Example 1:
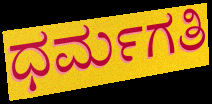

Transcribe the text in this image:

ಧರ್ಮಗತಿ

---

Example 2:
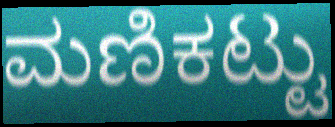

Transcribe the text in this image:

ಮಣಿಕಟ್ಟು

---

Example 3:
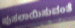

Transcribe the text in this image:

ಪುಸಲಾಯಿಸುವಂತೆ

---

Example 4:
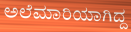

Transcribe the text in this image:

ಅಲೆಮಾರಿಯಾಗಿದ್ದ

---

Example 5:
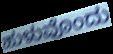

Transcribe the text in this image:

ಹುಳುವೊಂದು